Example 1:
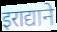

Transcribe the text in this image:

इराद्याने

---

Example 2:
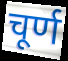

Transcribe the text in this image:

चूर्ण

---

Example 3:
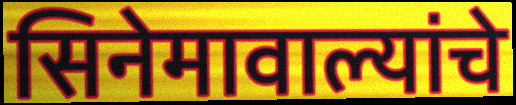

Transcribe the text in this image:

सिनेमावाल्यांचे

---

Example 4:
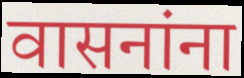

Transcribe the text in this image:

वासनांना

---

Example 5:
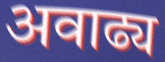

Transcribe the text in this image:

अवाढ्य